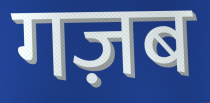
गज़ब